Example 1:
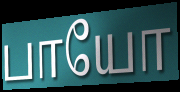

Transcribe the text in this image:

பாயோ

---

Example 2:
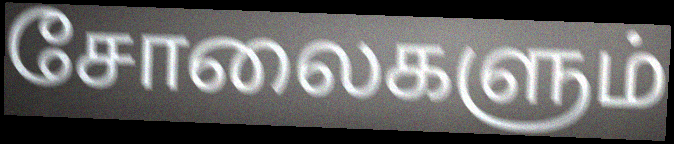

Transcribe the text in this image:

சோலைகளும்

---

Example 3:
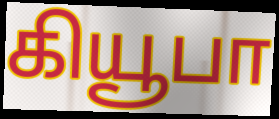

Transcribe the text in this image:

கியூபா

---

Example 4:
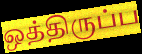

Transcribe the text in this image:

ஒத்திருப்ப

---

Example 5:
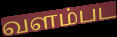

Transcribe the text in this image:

வளம்பட